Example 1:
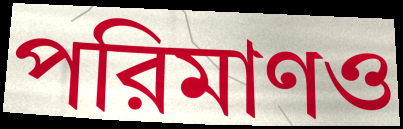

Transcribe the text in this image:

পরিমাণও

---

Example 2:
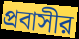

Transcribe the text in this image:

প্রবাসীর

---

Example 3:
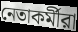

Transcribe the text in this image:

নেতাকর্মীরা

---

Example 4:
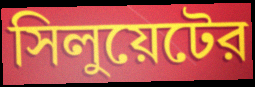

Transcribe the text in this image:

সিলুয়েটের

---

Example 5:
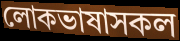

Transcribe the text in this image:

লোকভাষাসকল